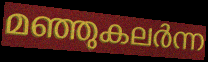
മഞ്ഞുകലർന്ന